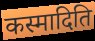
कस्मादिति